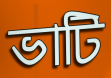
ভাটি